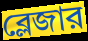
ব্লেজার